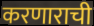
करणाराची